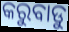
କରୁବାଡୁ